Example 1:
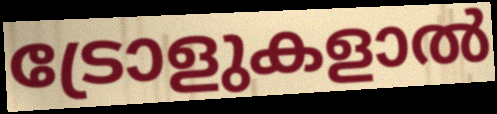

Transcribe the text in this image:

ട്രോളുകളാൽ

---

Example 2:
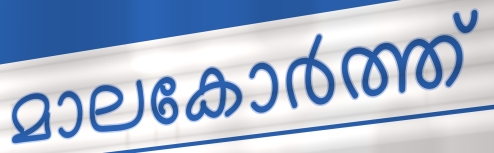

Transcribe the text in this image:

മാലകോർത്ത്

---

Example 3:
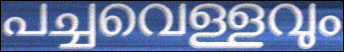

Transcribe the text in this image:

പച്ചവെള്ളവും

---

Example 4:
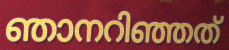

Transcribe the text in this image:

ഞാനറിഞ്ഞത്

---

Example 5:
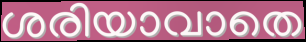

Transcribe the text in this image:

ശരിയാവാതെ